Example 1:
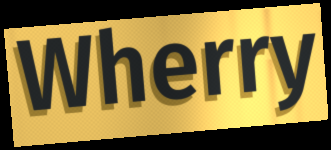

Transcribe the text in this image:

Wherry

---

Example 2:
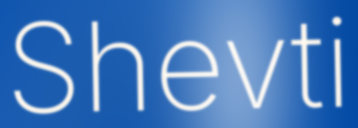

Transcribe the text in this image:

Shevti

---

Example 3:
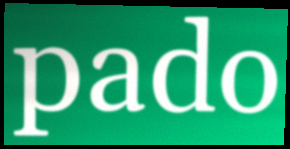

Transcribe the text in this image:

pado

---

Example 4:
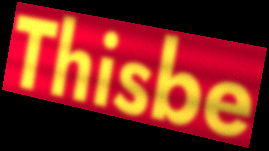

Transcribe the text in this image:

Thisbe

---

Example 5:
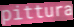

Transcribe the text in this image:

pittura